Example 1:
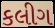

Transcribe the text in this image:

કલીગ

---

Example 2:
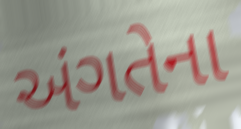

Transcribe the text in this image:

અંગતેના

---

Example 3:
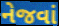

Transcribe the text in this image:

નેજવાં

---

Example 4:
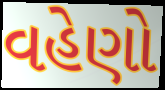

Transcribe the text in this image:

વહેણો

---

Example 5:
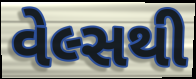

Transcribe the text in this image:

વેલ્સથી